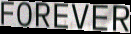
FOREVER